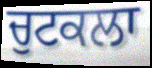
ਚੁਟਕਲਾ